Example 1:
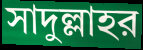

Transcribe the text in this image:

সাদুল্লাহর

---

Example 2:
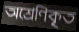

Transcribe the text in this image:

অশ্রেণিকৃত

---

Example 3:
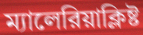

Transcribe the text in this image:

ম্যালেরিয়াক্লিষ্ট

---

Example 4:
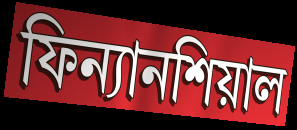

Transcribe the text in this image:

ফিন্যানশিয়াল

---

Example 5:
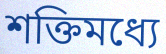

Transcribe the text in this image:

শক্তিমধ্যে